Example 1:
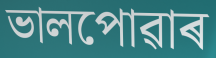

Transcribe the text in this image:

ভালপোৱাৰ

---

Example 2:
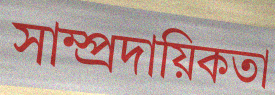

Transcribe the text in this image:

সাম্প্ৰদায়িকতা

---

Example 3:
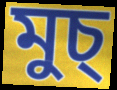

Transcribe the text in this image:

মুচ্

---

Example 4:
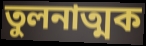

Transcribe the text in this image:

তুলনাত্মক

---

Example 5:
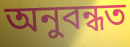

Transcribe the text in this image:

অনুবন্ধত